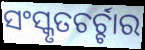
ସଂସ୍କୃତଚର୍ଚ୍ଚାର